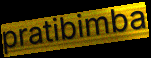
pratibimba